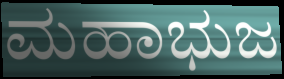
ಮಹಾಭುಜ